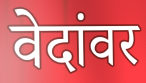
वेदांवर